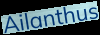
Ailanthus